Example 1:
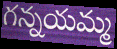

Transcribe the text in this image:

గన్నయమ్మ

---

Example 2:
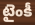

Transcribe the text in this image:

టైంకీ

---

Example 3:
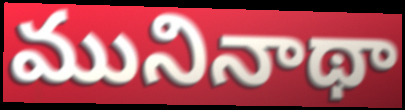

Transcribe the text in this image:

మునినాథా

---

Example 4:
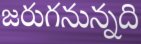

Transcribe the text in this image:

జరుగనున్నది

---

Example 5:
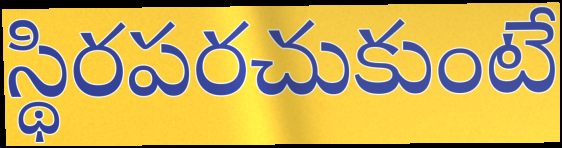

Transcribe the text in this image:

స్థిరపరచుకుంటే